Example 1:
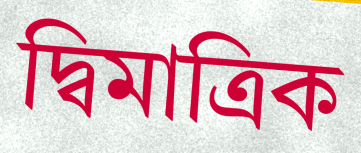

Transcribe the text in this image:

দ্বিমাত্ৰিক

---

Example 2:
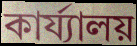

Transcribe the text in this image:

কাৰ্য্যালয়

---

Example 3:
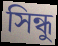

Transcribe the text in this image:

সিন্ধু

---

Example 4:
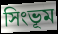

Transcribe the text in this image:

সিংভূম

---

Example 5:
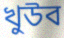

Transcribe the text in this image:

খুউব